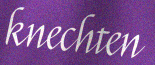
knechten